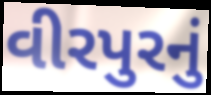
વીરપુરનું